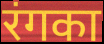
रंगका